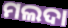
ମଲଦା